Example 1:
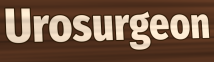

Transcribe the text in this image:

Urosurgeon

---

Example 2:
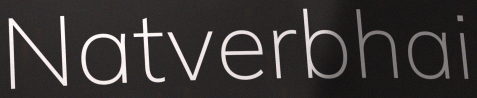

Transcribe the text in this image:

Natverbhai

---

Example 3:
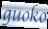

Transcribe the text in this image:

guoko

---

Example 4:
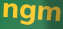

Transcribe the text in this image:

ngm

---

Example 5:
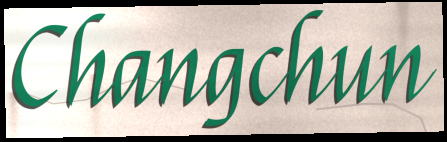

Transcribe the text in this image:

Changchun